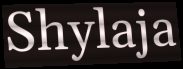
Shylaja